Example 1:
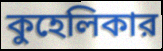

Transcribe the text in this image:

কুহেলিকার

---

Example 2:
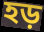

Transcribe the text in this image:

হড়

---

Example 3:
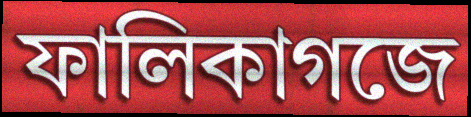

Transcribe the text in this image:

ফালিকাগজে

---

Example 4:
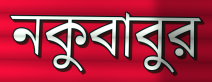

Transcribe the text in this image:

নকুবাবুর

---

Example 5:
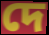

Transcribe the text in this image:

দে